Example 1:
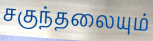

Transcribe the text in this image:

சகுந்தலையும்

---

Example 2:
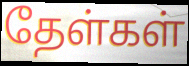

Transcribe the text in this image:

தேள்கள்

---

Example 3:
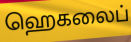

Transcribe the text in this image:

ஹெகலைப்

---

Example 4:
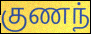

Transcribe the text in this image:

குணந்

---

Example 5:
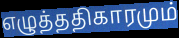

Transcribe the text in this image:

எழுத்ததிகாரமும்